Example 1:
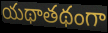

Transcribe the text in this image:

యథాతథంగా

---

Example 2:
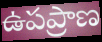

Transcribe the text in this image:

ఉపప్రాణ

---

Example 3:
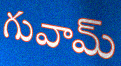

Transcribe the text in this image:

గువామ్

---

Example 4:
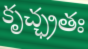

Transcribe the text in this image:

కృచ్ఛ్రతః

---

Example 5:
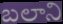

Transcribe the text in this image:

బలాని